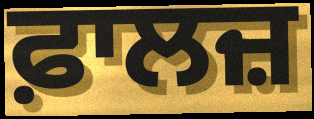
ਫ਼ਾਲਜ਼